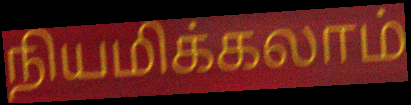
நியமிக்கலாம்